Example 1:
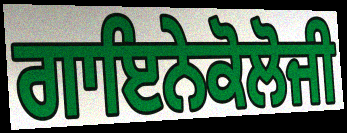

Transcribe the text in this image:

ਗਾਇਨੇਕੋਲੋਜੀ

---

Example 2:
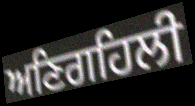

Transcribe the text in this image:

ਅਣਿਗਹਿਲੀ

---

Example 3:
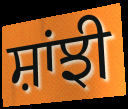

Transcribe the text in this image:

ਸ਼ਾਂਝੀ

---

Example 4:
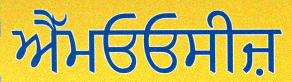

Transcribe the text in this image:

ਐੱਮਓਓਸੀਜ਼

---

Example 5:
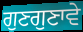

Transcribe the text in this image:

ਗੁਣਗੁਣਾਵੇ